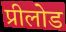
प्रीलोड